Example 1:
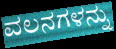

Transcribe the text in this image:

ವಲನಗಳನ್ನು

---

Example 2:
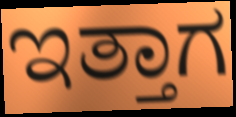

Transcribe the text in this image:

ಇತ್ತಾಗ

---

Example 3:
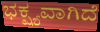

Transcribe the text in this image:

ಭಕ್ಷ್ಯವಾಗಿದೆ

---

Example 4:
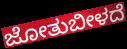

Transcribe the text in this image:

ಜೋತುಬೀಳದೆ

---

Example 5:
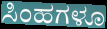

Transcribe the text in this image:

ಸಿಂಹಗಳೂ